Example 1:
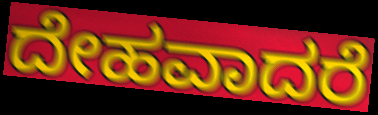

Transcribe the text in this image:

ದೇಹವಾದರೆ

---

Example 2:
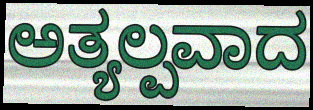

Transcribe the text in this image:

ಅತ್ಯಲ್ಪವಾದ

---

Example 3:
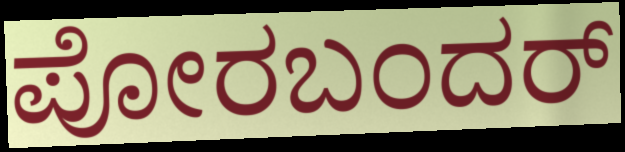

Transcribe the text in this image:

ಪೋರಬಂದರ್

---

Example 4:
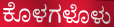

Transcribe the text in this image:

ಕೊಳಗಳೊಳು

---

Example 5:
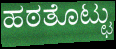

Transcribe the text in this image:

ಹಠತೊಟ್ಟು